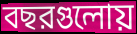
বছরগুলোয়